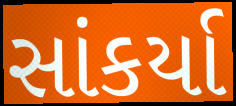
સાંકર્યા